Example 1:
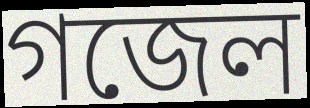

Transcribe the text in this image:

গজেল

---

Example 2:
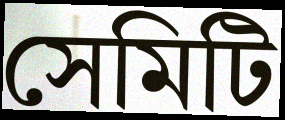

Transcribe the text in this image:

সেমিটি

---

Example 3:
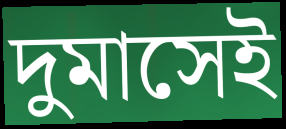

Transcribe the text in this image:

দুমাসেই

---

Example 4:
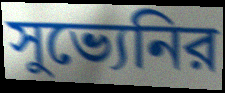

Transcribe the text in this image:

সুভ্যেনির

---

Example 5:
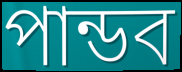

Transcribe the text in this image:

পান্ডব